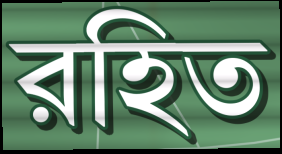
রহিত